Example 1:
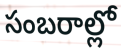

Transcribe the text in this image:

సంబరాల్లో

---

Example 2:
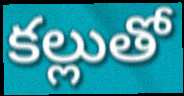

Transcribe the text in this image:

కల్లుతో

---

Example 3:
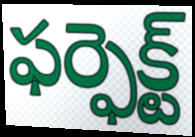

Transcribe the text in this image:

ఫర్ఫెక్ట్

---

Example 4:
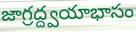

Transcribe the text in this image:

జాగ్రద్ద్వయాభాసం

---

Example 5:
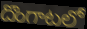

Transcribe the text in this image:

దొంగాటలో